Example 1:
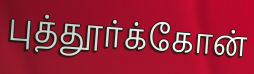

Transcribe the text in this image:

புத்தூர்க்கோன்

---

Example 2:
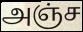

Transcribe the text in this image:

அஞ்ச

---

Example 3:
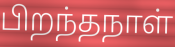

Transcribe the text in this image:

பிறந்தநாள்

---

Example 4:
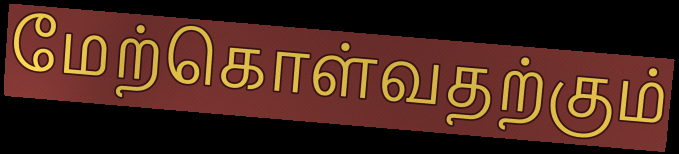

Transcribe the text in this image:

மேற்கொள்வதற்கும்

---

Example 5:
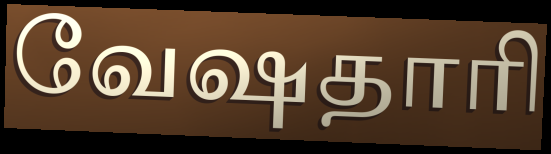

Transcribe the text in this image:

வேஷதாரி